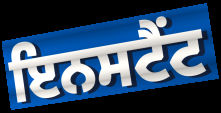
ਇਨਸਟੈਂਟ